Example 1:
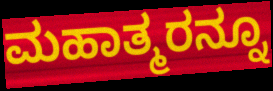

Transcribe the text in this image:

ಮಹಾತ್ಮರನ್ನೂ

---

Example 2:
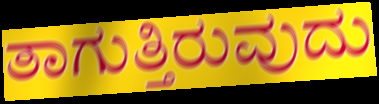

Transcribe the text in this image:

ತಾಗುತ್ತಿರುವುದು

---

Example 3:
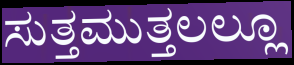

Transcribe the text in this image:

ಸುತ್ತಮುತ್ತಲಲ್ಲೂ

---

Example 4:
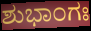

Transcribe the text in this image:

ಶುಭಾಂಗಃ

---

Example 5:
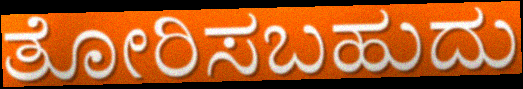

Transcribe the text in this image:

ತೋರಿಸಬಹುದು